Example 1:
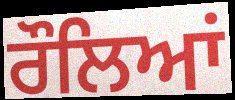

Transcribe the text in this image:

ਰੌਲਿਆਂ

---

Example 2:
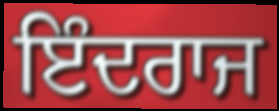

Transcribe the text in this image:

ਇੰਦਰਾਜ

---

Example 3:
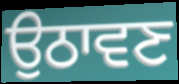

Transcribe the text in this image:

ਉਠਾਵਣ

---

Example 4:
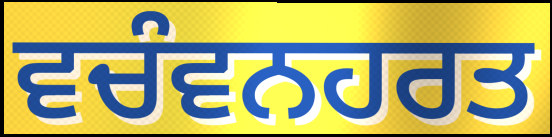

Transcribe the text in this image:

ਵਚੰਵਨਹਰਤ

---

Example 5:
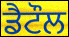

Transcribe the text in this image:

ਡੈਟੌਲ